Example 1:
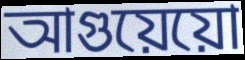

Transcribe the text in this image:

আগুয়েয়ো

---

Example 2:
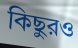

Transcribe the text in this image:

কিছুরও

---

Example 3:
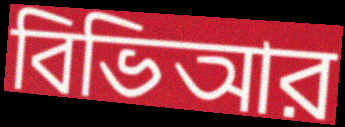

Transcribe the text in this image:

বিভিআর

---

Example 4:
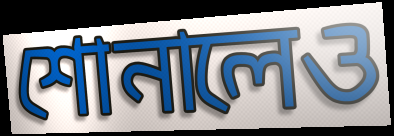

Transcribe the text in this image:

শোনালেও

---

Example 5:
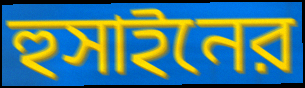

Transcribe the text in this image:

হুসাইনের